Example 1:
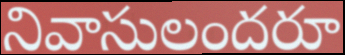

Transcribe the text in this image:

నివాసులందరూ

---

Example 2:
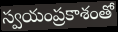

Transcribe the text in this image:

స్వయంప్రకాశంతో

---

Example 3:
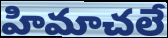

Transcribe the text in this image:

హిమాచలే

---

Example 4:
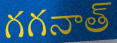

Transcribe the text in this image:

గగనాత్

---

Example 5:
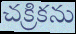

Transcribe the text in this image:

చక్రికను